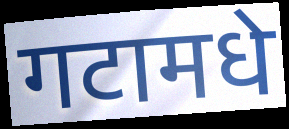
गटामधे